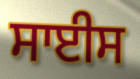
ਸਾਈਸ